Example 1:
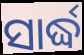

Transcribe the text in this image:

ସାର୍ଦ୍ଧ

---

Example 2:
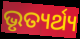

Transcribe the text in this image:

ଭୃତ୍ୟର୍ଥ୍ୟ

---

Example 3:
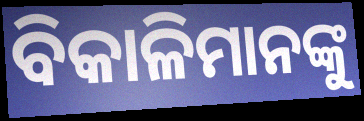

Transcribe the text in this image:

ବିକାଳିମାନଙ୍କୁ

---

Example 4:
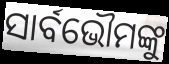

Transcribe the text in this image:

ସାର୍ବଭୌମଙ୍କୁ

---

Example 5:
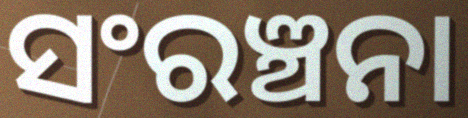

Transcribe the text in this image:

ସଂରଞ୍ଚନା